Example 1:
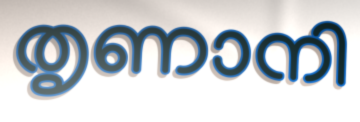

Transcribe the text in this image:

തൃണാനി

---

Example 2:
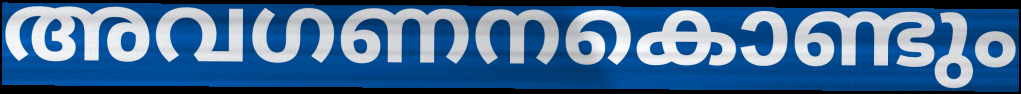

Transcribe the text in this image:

അവഗണനകൊണ്ടും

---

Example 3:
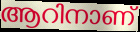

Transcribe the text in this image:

ആറിനാണ്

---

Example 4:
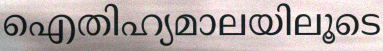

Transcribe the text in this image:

ഐതിഹ്യമാലയിലൂടെ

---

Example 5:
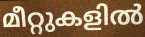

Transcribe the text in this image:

മീറ്റുകളിൽ